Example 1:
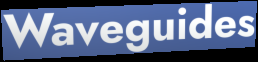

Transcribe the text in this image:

Waveguides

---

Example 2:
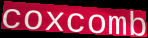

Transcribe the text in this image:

coxcomb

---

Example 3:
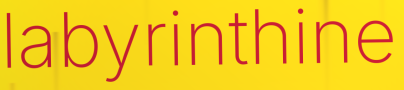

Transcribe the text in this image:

labyrinthine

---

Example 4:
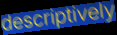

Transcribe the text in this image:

descriptively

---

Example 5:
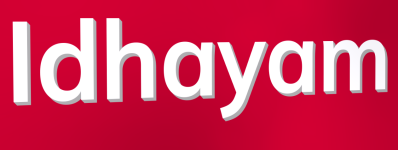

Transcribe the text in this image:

Idhayam